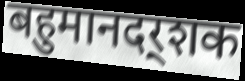
बहुमानदर्शक